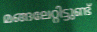
മങ്ങലേറ്റിട്ടുണ്ട്